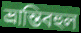
ভ্রান্তিবহুল